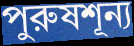
পুরুষশূন্য